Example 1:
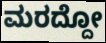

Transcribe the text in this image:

ಮರದ್ದೋ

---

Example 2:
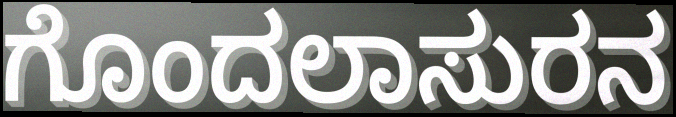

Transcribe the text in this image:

ಗೊಂದಲಾಸುರನ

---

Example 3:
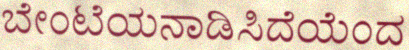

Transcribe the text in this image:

ಬೇಂಟೆಯನಾಡಿಸಿದೆಯೆಂದ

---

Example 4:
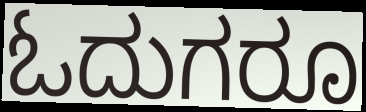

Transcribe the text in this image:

ಓದುಗರೂ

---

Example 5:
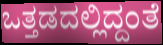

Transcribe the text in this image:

ಒತ್ತಡದಲ್ಲಿದ್ದಂತೆ